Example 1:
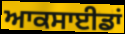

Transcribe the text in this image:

ਆਕਸਾਈਡਾਂ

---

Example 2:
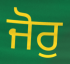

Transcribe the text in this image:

ਜੋਰੁ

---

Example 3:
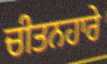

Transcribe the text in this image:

ਚੀਤਨਹਾਰੇ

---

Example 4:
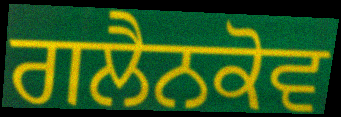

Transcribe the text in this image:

ਗਲੈਨਕੋਵ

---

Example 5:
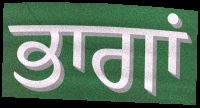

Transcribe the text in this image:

ਭਾਗਾਂ